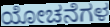
ಯೋಚನೆಗಳ